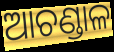
ଆଚଣ୍ଡାଳ